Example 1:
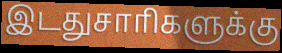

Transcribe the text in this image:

இடதுசாரிகளுக்கு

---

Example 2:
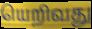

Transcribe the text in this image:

யெறிவது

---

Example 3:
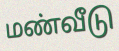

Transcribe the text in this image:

மண்வீடு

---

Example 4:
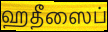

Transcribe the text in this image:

ஹதீஸைப்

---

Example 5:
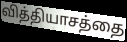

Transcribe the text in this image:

வித்தியாசத்தை